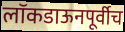
लॉकडाऊनपूर्वीच